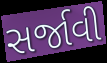
સર્જાવી